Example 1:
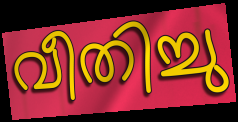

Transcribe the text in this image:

വീതിച്ചു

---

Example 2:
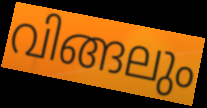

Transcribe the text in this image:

വിങ്ങലും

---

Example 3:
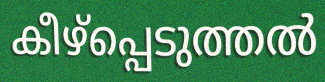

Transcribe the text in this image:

കീഴ്പ്പെടുത്തൽ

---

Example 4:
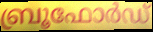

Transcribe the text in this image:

ബ്രൂഫോർഡ്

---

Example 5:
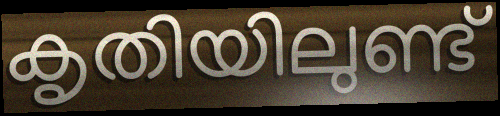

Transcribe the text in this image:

കൃതിയിലുണ്ട്